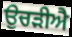
ਉਚੜੀਐ